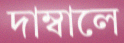
দাম্বালে